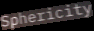
Sphericity